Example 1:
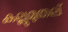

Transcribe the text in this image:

കല്ലുമുതല്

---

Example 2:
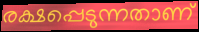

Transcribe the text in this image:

രക്ഷപ്പെടുന്നതാണ്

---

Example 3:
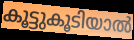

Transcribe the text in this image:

കൂട്ടുകൂടിയാൽ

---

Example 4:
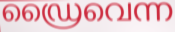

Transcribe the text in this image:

ഡ്രൈവെന്ന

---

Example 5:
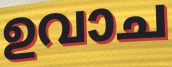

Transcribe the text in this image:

ഉവാച